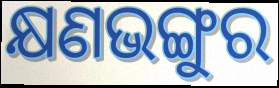
କ୍ଷଣଭଙ୍ଗୁର